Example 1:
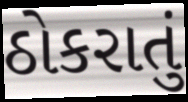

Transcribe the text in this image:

ઠોકરાતું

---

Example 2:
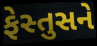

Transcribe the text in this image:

ફેસ્તુસને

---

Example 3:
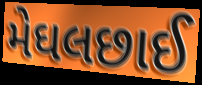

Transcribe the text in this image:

મેઘલછાઈ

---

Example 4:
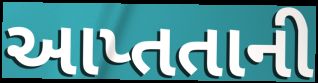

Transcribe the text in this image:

આપ્તતાની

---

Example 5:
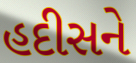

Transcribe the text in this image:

હદીસને